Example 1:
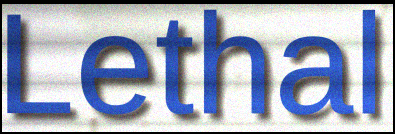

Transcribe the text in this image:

Lethal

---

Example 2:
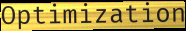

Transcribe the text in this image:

Optimization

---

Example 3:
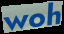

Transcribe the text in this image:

woh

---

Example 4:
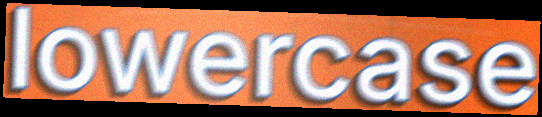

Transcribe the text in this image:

lowercase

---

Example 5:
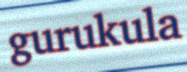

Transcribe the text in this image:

gurukula